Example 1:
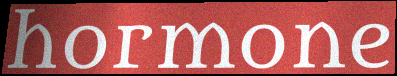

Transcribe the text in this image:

hormone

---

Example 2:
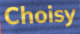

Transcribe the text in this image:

Choisy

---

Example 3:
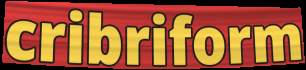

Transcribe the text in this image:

cribriform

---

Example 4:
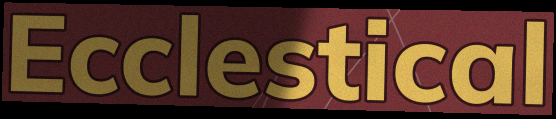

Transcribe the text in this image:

Ecclestical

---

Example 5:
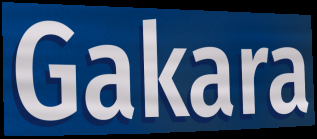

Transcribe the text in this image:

Gakara